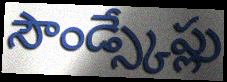
సౌండ్స్కేప్లు